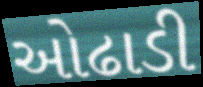
ઓઢાડી